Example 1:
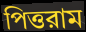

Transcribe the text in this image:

পিত্তরাম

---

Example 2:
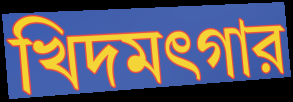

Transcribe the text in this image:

খিদমৎগার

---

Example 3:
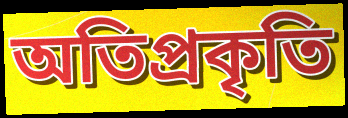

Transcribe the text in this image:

অতিপ্রকৃতি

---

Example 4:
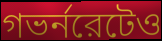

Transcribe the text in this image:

গভর্নরেটেও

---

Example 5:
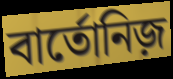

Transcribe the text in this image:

বার্তোনিজ়